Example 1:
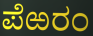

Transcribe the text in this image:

ಪೆಱರಂ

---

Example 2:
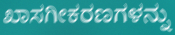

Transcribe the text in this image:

ಖಾಸಗೀಕರಣಗಳನ್ನು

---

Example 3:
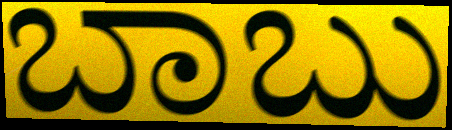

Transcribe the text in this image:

ಬಾಬು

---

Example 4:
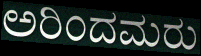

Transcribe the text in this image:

ಅರಿಂದಮರು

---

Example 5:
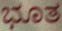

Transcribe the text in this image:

ಭೂತ